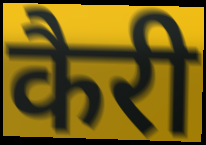
कैरी